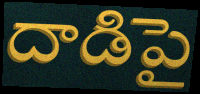
దాడిపై